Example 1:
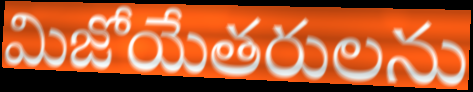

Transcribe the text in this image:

మిజోయేతరులను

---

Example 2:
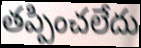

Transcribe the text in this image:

తప్పించలేదు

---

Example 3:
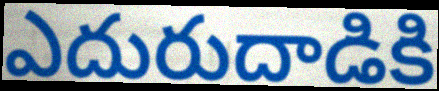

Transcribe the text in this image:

ఎదురుదాడికి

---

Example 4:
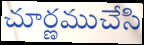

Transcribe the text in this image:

చూర్ణముచేసి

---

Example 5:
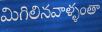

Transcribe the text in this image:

మిగిలినవాళ్ళంతా